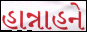
હાન્નાહને